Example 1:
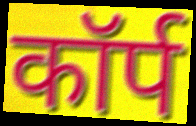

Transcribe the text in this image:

कॉर्प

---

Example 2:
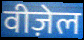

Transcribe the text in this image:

वीज़ेल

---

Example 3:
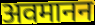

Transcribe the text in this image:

अवमानन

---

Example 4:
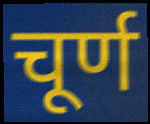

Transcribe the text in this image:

चूर्ण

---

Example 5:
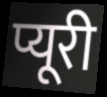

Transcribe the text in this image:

प्यूरी